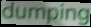
dumping